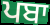
ਪਬਾ